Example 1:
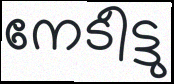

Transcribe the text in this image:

നേടീട്ടു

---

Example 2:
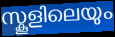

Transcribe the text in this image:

സ്കൂളിലെയും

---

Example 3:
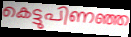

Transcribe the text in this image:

കെട്ടുപിണഞ്ഞ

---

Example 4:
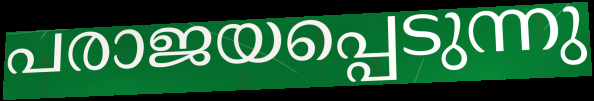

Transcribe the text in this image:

പരാജയപ്പെടുന്നു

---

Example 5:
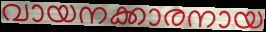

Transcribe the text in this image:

വായനക്കാരനായ